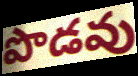
పొడవు